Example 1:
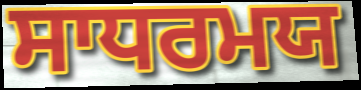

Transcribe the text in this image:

ਸਾਧਰਮਯ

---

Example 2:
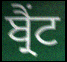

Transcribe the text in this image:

ਬ੍ਰੈਂਟ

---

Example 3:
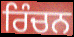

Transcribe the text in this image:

ਰਿੰਚਨ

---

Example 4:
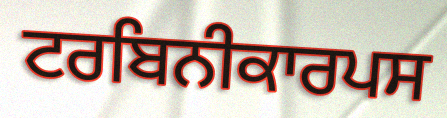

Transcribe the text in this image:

ਟਰਬਿਨੀਕਾਰਪਸ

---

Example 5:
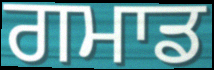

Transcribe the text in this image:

ਗਮਾਡ